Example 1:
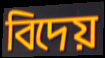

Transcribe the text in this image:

বিদেয়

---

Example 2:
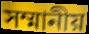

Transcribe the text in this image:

সম্মানীয়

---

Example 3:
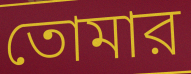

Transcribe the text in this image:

তোমার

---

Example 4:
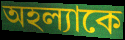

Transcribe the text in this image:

অহল্যাকে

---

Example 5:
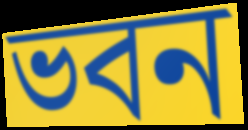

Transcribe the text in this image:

ভবন